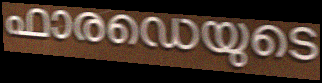
ഫാരഡെയുടെ